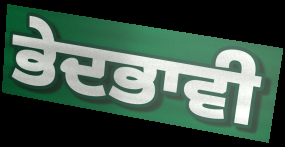
ਭੇਦਭਾਵੀ